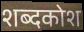
शब्दकोश